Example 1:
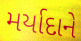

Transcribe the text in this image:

મર્યાદાને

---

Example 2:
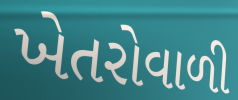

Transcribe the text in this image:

ખેતરોવાળી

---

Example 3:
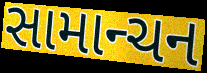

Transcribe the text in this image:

સામાન્ચન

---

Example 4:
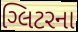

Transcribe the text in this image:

ગ્લિટરના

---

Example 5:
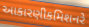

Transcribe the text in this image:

આકારણીકમિશનરે